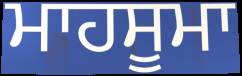
ਮਾਹਸੂਮਾ